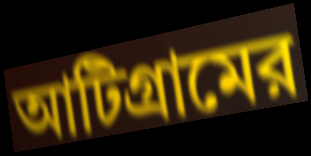
আটিগ্রামের